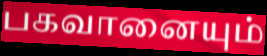
பகவானையும்